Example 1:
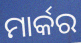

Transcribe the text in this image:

ମାର୍କର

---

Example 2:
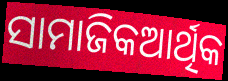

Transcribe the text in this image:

ସାମାଜିକଆର୍ଥିକ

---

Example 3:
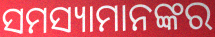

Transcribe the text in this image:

ସମସ୍ୟାମାନଙ୍କର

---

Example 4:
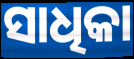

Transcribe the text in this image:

ସାଧିକା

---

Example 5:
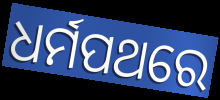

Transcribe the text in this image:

ଧର୍ମପଥରେ